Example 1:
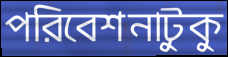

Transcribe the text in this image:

পরিবেশনাটুকু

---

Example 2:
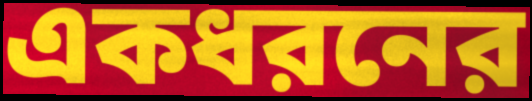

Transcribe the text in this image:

একধরনের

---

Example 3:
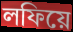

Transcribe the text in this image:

লফিয়ে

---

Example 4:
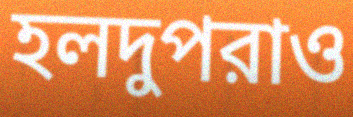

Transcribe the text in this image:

হলদুপরাও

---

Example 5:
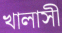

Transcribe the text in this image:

খালাসী